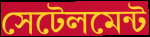
সেটেলমেন্ট